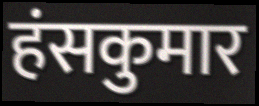
हंसकुमार